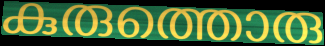
കുരുത്തൊരു